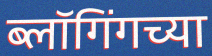
ब्लॉगिंगच्या